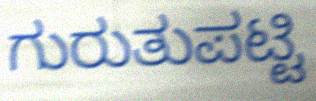
ಗುರುತುಪಟ್ಟಿ